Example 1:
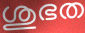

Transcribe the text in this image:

ശുഭത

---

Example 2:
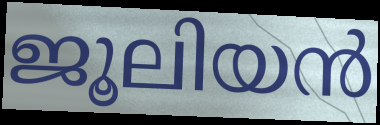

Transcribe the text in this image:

ജൂലിയൻ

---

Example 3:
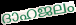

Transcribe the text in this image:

ദാഹജലം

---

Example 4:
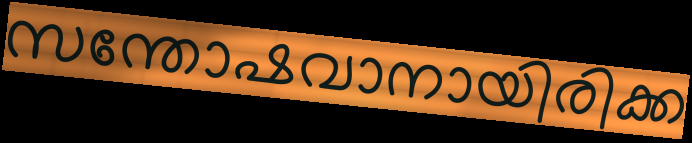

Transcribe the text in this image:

സന്തോഷവാനായിരിക്ക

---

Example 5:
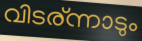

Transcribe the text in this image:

വിടര്ന്നാടും